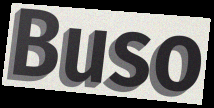
Buso